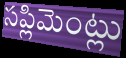
సప్లిమెంట్లు